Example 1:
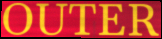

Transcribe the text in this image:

OUTER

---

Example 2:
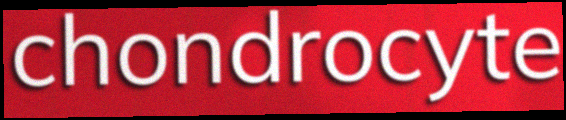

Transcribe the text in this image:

chondrocyte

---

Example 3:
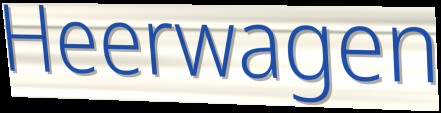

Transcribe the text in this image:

Heerwagen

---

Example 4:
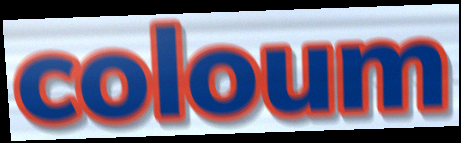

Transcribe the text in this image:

coloum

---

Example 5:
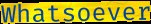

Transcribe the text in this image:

Whatsoever